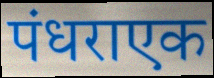
पंधराएक